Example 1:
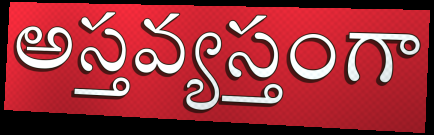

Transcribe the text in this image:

అస్తవ్యస్తంగా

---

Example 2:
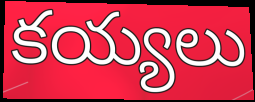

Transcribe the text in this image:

కయ్యలు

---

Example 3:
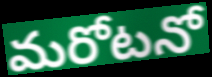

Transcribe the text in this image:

మరోటనో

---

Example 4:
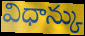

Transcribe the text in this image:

విధాన్కు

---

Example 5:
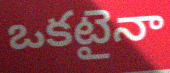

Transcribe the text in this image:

ఒకటైనా